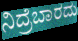
ನಿದ್ರೆಬಾರದು